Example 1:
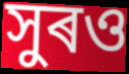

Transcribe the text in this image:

সুৰও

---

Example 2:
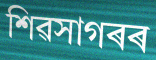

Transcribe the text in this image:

শিৱসাগৰৰ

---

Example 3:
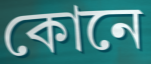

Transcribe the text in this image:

কোনে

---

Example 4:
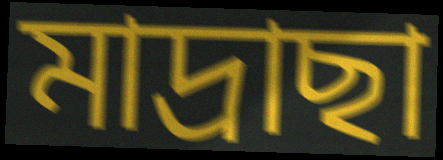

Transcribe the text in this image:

মাদ্ৰাছা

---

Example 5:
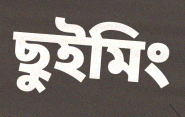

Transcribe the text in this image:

ছুইমিং